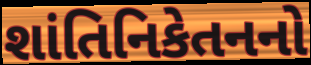
શાંતિનિકેતનનો